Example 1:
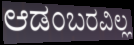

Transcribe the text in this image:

ಆಡಂಬರವಿಲ್ಲ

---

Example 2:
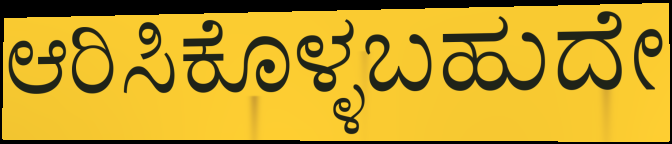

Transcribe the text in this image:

ಆರಿಸಿಕೊಳ್ಳಬಹುದೇ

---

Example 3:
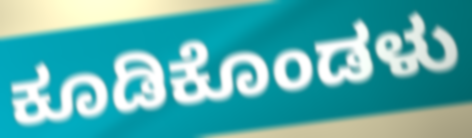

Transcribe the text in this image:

ಕೂಡಿಕೊಂಡಳು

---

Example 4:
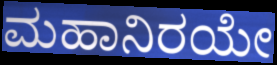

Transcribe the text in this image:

ಮಹಾನಿರಯೇ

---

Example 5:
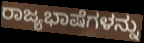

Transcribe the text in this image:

ರಾಜ್ಯಭಾಷೆಗಳನ್ನು